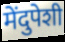
मेंदुपेशी